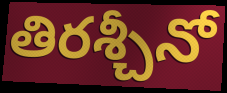
తిరశ్చీనో